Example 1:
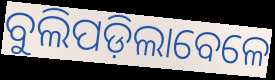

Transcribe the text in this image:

ବୁଲିପଡ଼ିଲାବେଳେ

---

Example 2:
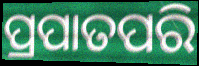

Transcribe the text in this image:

ପ୍ରପାତପରି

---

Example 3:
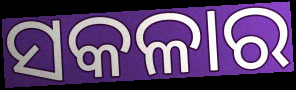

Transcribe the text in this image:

ସକଳାର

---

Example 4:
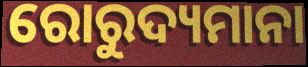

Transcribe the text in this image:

ରୋରୁଦ୍ୟମାନା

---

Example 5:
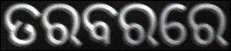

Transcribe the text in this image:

ତରବରରେ